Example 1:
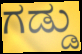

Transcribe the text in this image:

ಗಡ್ಡು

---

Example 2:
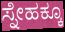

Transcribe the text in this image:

ಸ್ನೇಹಕ್ಕೂ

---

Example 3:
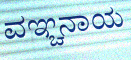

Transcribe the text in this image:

ವಞ್ಚನಾಯ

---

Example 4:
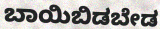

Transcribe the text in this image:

ಬಾಯಿಬಿಡಬೇಡ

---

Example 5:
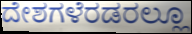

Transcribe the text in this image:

ದೇಶಗಳೆರಡರಲ್ಲೂ